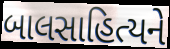
બાલસાહિત્યને